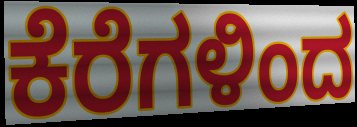
ಕೆರೆಗಳಿಂದ